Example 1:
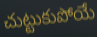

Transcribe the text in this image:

చుట్టుకుపోయే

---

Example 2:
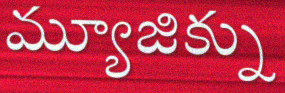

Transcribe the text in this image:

మ్యూజిక్ను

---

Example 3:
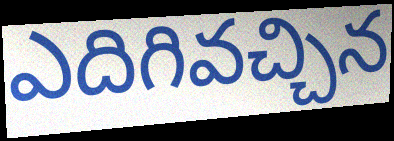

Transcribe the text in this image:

ఎదిగివచ్చిన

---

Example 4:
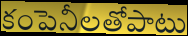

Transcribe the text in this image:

కంపెనీలతోపాటు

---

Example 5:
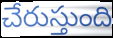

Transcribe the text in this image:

చేరుస్తుంది